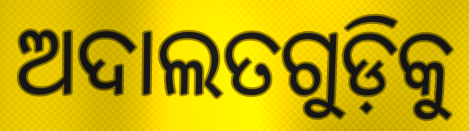
ଅଦାଲତଗୁଡ଼ିକୁ